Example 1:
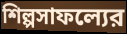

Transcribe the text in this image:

শিল্পসাফল্যের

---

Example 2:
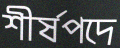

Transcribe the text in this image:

শীর্ষপদে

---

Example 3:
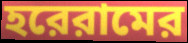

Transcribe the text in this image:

হরেরামের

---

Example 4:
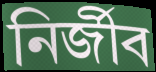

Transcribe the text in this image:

নির্জীব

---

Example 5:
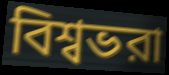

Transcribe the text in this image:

বিশ্বভরা